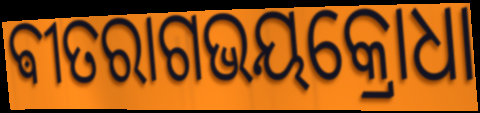
ଵୀତରାଗଭୟକ୍ରୋଧା